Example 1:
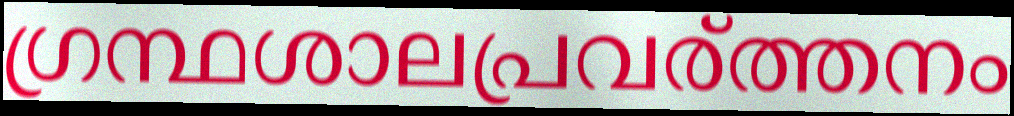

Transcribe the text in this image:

ഗ്രന്ഥശാലപ്രവര്ത്തനം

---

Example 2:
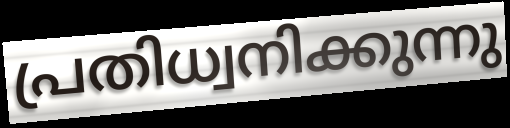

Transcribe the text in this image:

പ്രതിധ്വനിക്കുന്നു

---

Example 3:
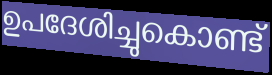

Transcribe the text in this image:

ഉപദേശിച്ചുകൊണ്ട്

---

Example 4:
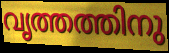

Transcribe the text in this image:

വൃത്തത്തിനു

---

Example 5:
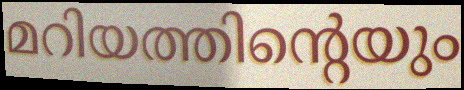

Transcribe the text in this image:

മറിയത്തിന്റെയും